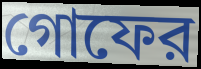
গোফের